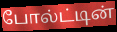
போல்ட்டின்